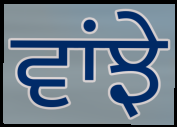
ਵਾਂਝੇ